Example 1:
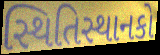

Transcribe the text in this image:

સ્થિતિસ્થાનકો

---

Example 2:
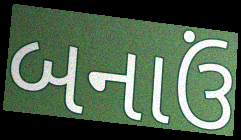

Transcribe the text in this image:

બનાઉં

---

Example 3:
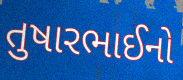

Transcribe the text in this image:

તુષારભાઈનો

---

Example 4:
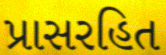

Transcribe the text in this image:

પ્રાસરહિત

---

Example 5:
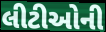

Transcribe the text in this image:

લીટીઓની